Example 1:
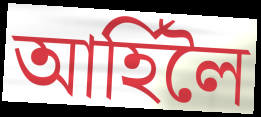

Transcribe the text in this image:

আৰ্হিলৈ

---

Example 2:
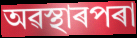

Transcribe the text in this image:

অৱস্থাৰপৰা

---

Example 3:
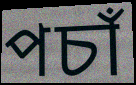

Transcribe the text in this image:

পচাঁ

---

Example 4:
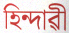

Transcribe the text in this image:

হিন্দাৱী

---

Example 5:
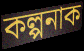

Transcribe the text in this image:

কল্পনাক